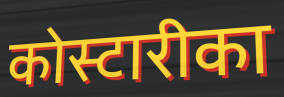
कोस्टारीका